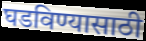
घडविण्यासाठी